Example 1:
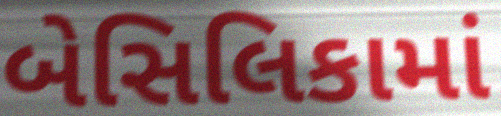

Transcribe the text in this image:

બેસિલિકામાં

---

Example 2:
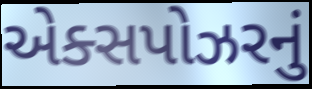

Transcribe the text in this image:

એક્સપોઝરનું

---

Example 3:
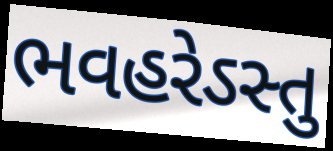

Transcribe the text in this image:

ભવહરેઽસ્તુ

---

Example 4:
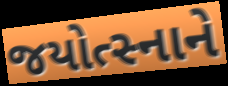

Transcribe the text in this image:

જયોત્સ્નાને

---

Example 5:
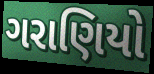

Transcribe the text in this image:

ગરાણિયો